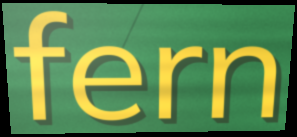
fern